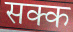
सक्क